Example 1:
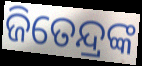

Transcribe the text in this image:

ଜିତେନ୍ଦ୍ରଙ୍କ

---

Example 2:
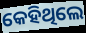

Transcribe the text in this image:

କେହିଥିଲେ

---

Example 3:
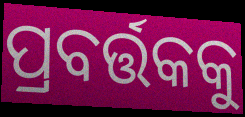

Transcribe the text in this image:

ପ୍ରବର୍ତ୍ତକକୁ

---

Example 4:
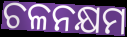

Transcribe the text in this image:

ଚଳନକ୍ଷମ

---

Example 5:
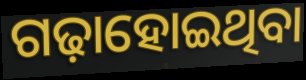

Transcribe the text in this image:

ଗଢ଼ାହୋଇଥିବା